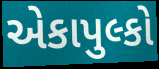
એકાપુલ્કો